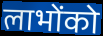
लाभोंको